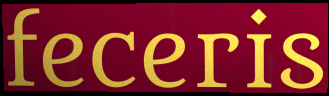
feceris